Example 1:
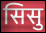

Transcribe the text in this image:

सिसु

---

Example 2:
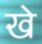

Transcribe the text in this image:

खे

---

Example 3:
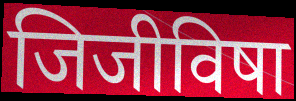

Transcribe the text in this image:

जिजीविषा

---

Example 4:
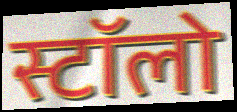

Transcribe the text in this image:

स्टॉलो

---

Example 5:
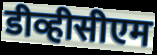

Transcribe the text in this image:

डीव्हीसीएम